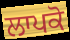
ਲਾਪਕੋ